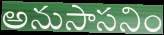
అనుసాసనిం